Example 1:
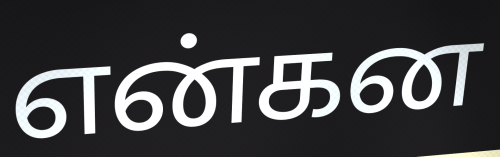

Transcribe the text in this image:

என்கன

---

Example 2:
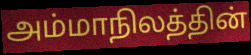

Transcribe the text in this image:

அம்மாநிலத்தின்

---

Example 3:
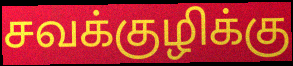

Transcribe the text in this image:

சவக்குழிக்கு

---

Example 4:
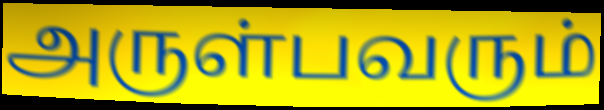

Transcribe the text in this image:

அருள்பவரும்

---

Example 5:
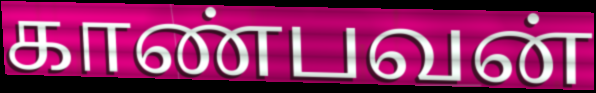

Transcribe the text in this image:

காண்பவன்